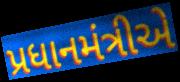
પ્રધાનમંત્રીએ